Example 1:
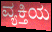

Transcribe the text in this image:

ವ್ಯಕ್ತಿಯ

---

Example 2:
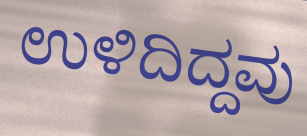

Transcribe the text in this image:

ಉಳಿದಿದ್ದವು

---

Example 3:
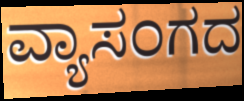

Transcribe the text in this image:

ವ್ಯಾಸಂಗದ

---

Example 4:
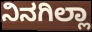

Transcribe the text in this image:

ನಿನಗಿಲ್ಲಾ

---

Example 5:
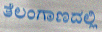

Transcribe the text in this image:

ತೆಲಂಗಾಣದಲ್ಲಿ